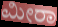
ಮೀರಾ